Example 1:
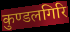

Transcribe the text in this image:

कुण्डलगिरि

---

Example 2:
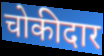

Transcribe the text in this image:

चोकीदार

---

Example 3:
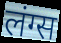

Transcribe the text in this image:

लंग्स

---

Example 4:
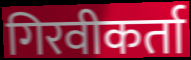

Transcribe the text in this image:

गिरवीकर्ता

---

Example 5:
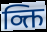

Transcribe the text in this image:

व्क्ति